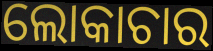
ଲୋକାଚାର